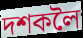
দশকলৈ